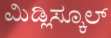
ಮಿಡ್ಲಿಸ್ಕೂಲ್